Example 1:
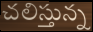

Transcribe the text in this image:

చలిస్తున్న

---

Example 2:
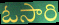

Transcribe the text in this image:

ఓసారి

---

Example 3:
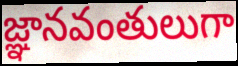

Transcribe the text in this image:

జ్ఞానవంతులుగా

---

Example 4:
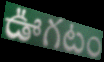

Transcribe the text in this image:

ఊగటం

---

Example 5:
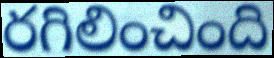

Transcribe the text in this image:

రగిలించింది